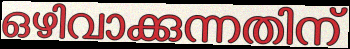
ഒഴിവാക്കുന്നതിന്